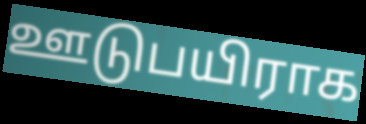
ஊடுபயிராக